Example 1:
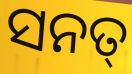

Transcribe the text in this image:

ସନତ୍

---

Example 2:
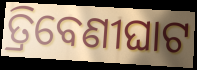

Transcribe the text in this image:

ତ୍ରିବେଣୀଘାଟ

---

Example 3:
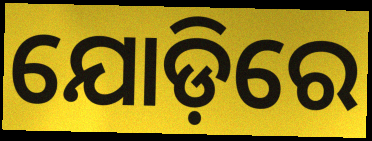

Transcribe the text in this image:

ଯୋଡ଼ିରେ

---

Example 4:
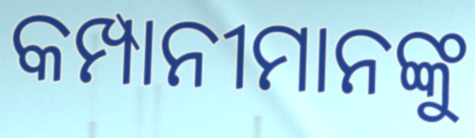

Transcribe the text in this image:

କମ୍ପାନୀମାନଙ୍କୁ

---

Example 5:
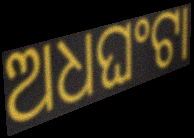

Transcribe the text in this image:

ଅଧଘଂଟା